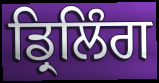
ਡ੍ਰਿਲਿੰਗ